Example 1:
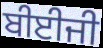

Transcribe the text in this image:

ਬੀਈਜੀ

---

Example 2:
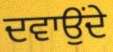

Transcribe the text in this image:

ਦਵਾਉਂਦੇ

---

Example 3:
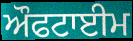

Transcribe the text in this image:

ਔਫਟਾਈਮ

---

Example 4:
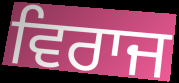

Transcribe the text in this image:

ਵਿਰਾਜ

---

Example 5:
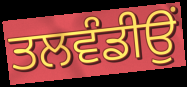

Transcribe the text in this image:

ਤਲਵੰਡੀਉਂ